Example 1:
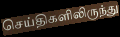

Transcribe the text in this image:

செய்திகளிலிருந்து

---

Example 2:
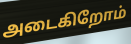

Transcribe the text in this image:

அடைகிறோம்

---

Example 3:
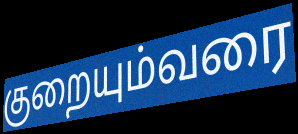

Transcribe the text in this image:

குறையும்வரை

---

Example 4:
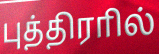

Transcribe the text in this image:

புத்திரரில்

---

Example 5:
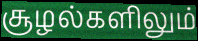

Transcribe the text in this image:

சூழல்களிலும்